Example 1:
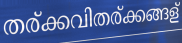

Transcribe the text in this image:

തര്ക്കവിതര്ക്കങ്ങള്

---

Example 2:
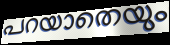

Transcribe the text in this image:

പറയാതെയും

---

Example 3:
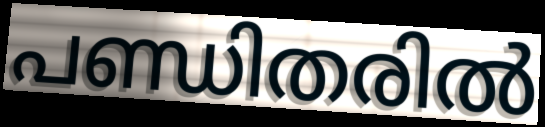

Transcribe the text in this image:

പണ്ഡിതരിൽ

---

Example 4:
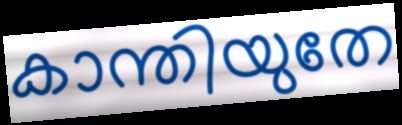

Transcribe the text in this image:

കാന്തിയുതേ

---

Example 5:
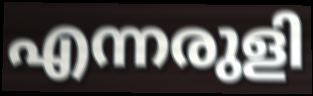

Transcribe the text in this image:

എന്നരുളി